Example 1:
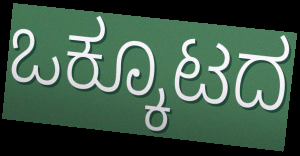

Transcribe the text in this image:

ಒಕ್ಕೂಟದ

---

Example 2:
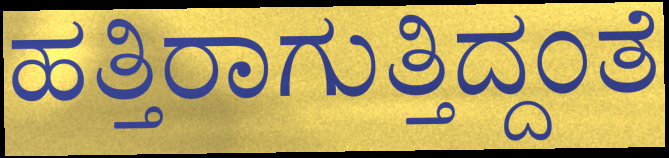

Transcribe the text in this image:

ಹತ್ತಿರಾಗುತ್ತಿದ್ದಂತೆ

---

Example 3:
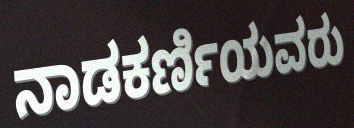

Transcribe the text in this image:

ನಾಡಕರ್ಣಿಯವರು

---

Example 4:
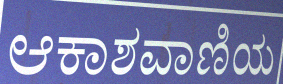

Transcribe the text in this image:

ಆಕಾಶವಾಣಿಯ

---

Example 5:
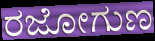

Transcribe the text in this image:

ರಜೋಗುಣ